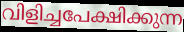
വിളിച്ചപേക്ഷിക്കുന്ന